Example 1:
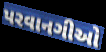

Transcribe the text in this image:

પરવાનગીઓ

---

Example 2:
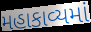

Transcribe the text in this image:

મહાકાવ્યમાં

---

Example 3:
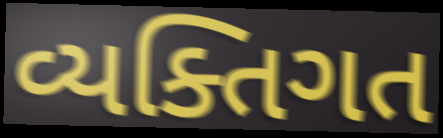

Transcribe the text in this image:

વ્યક્તિગત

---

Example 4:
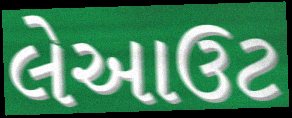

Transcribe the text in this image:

લેઆઉટ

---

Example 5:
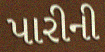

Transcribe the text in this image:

પારીની